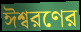
ঈশ্বরণের